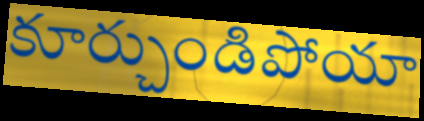
కూర్చుండిపోయా